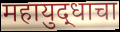
महायुद्धाचा